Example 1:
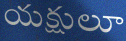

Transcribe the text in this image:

యక్షులూ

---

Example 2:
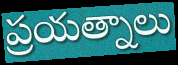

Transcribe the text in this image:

ప్రయత్నాలు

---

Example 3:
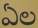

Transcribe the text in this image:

ఏల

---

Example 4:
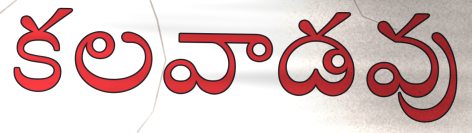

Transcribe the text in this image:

కలవాడవు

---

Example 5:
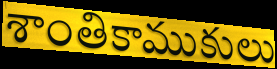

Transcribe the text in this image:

శాంతికాముకులు